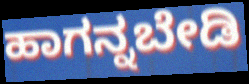
ಹಾಗನ್ನಬೇಡಿ